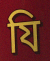
যি